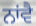
ਨਾਂਵੈ